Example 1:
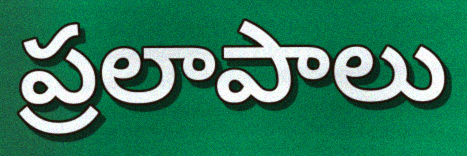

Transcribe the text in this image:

ప్రలాపాలు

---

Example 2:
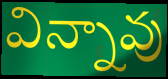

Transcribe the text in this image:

విన్నావు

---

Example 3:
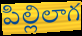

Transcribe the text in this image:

పిల్లిలాగ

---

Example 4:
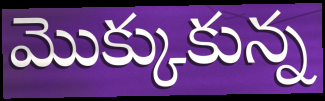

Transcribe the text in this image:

మొక్కుకున్న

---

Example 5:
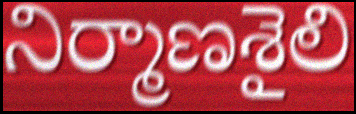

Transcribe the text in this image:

నిర్మాణశైలి